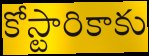
కోస్టారికాకు